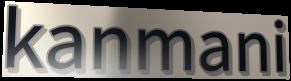
kanmani